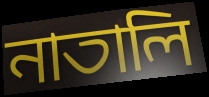
নাতালি